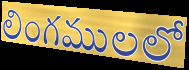
లింగములలో